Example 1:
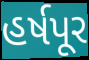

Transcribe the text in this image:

હર્ષપૂર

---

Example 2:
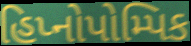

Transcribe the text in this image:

હિપ્નોપોમ્પિક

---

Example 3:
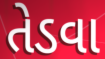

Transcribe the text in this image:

તેડવા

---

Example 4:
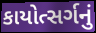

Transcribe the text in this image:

કાયોત્સર્ગનું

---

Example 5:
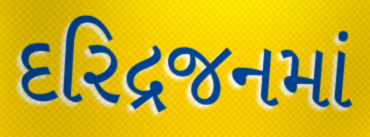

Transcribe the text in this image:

દરિદ્રજનમાં